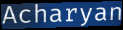
Acharyan